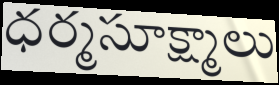
ధర్మసూక్ష్మాలు